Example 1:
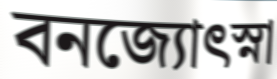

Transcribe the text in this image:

বনজ্যোৎস্না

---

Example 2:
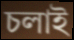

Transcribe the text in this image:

চলাই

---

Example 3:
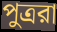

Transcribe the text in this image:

পুত্ররা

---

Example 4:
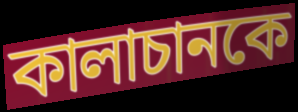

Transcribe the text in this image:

কালাচানকে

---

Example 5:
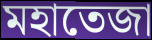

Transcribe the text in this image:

মহাতেজা